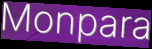
Monpara